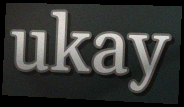
ukay